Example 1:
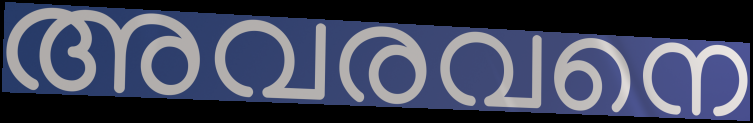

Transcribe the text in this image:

അവരവനെ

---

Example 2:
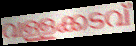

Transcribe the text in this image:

വള്ളക്കടവ്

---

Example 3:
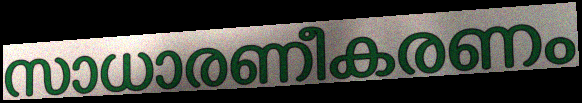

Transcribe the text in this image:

സാധാരണീകരണം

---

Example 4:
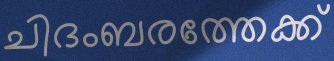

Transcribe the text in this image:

ചിദംബരത്തേക്ക്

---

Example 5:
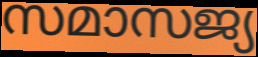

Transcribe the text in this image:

സമാസജ്യ